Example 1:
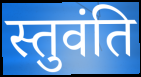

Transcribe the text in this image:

स्तुवंति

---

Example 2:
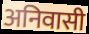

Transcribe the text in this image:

अनिवासी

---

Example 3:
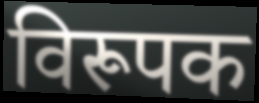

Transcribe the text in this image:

विरूपक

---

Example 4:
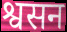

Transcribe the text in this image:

श्वसन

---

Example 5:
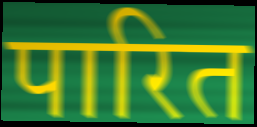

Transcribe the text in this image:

पारित